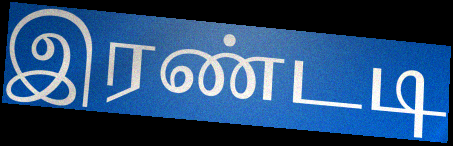
இரண்டடி